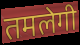
तमलेगी